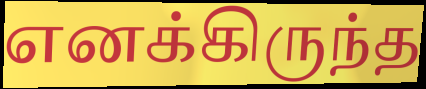
எனக்கிருந்த